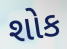
શોક